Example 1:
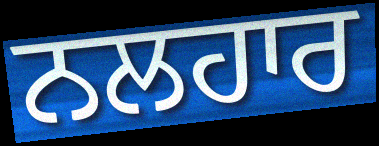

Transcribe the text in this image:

ਨਲਹਾਰ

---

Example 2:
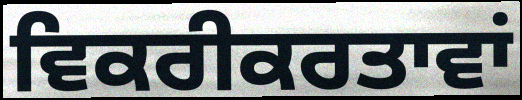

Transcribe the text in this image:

ਵਿਕਰੀਕਰਤਾਵਾਂ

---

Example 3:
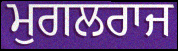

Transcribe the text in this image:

ਮੁਗਲਰਾਜ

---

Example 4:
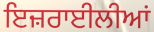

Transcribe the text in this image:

ਇਜ਼ਰਾਈਲੀਆਂ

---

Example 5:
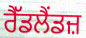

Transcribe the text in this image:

ਰੈੱਡਲੈਂਡਜ਼